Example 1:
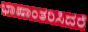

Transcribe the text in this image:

ಭಾಷಾಂತರಿಸಿದರೆ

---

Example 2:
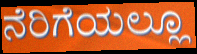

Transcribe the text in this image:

ನೆರಿಗೆಯಲ್ಲೂ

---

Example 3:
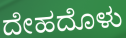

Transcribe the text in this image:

ದೇಹದೊಳು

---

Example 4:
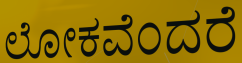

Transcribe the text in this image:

ಲೋಕವೆಂದರೆ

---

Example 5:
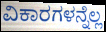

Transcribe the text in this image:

ವಿಕಾರಗಳನ್ನೆಲ್ಲ